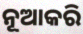
ନୂଆକରି